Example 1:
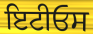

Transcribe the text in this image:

ਇਟੀਓਸ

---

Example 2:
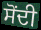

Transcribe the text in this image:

ਸੋਂਦੀ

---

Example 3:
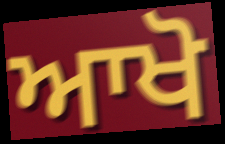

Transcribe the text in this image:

ਆਖੋ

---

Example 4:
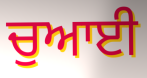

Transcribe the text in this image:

ਚੁਆਈ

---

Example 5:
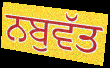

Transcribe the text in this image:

ਨਬੁਵੱਤ